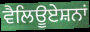
ਵੈਲਿਊਏਸ਼ਨਾਂ